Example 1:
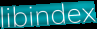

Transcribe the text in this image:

libindex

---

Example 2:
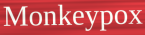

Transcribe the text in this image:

Monkeypox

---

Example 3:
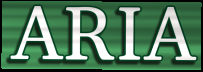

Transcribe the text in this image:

ARIA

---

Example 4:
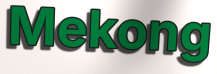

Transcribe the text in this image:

Mekong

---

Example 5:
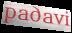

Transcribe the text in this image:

padavi